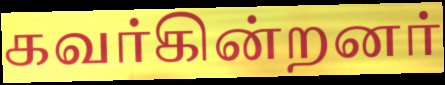
கவர்கின்றனர்